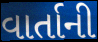
વાર્તાની